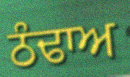
ਠੰਢਾਅ